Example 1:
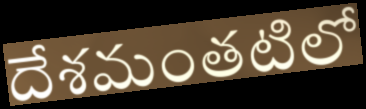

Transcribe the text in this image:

దేశమంతటిలో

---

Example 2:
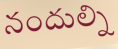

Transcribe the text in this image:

నందుల్ని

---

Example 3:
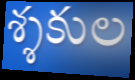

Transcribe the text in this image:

శ్శకుల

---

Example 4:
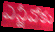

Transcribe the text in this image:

ఎన్జీవోకు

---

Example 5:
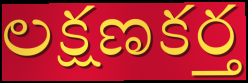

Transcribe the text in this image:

లక్షణకర్త